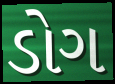
ડોગ